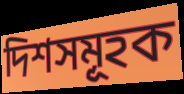
দিশসমূহক